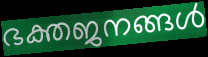
ഭക്തജനങ്ങൾ